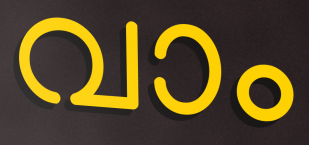
വാം